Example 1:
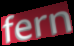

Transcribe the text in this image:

fern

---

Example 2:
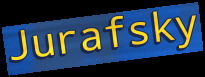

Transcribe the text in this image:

Jurafsky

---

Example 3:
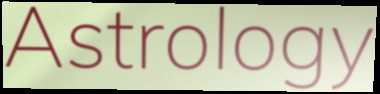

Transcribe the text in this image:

Astrology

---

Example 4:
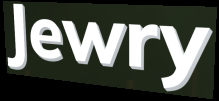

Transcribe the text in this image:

Jewry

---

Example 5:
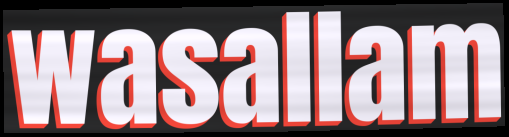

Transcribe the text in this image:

wasallam